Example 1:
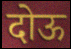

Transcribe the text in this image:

दोऊ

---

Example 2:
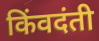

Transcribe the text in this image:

किंवदंती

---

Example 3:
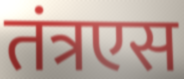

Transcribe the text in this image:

तंत्रएस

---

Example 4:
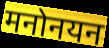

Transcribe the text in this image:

मनोनयन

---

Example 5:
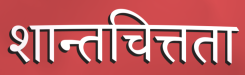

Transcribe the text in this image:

शान्तचित्तता